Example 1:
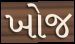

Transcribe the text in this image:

ખોજ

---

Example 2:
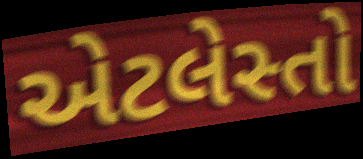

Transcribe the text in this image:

એટલેસ્તો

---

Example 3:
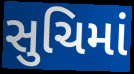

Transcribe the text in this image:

સુચિમાં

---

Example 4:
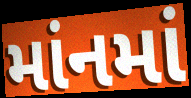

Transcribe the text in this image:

માંનમાં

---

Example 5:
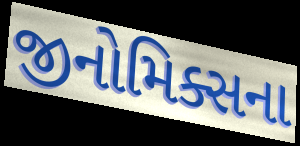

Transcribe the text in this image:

જીનોમિક્સના